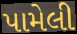
પામેલી